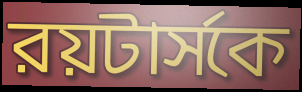
রয়টার্সকে